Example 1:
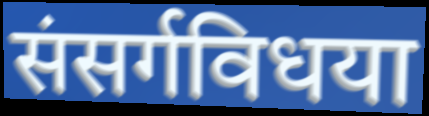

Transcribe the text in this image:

संसर्गविधया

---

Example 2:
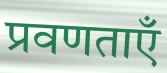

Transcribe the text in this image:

प्रवणताएँ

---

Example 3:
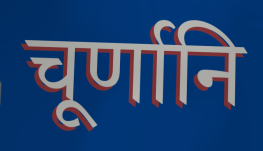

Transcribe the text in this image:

चूर्णानि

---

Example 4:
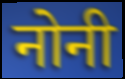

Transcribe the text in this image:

नोनी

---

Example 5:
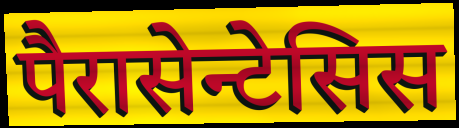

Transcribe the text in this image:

पैरासेन्टेसिस